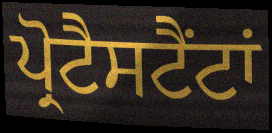
ਪ੍ਰੋਟੈਸਟੈਂਟਾਂ